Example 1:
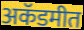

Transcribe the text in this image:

अकॅडमीत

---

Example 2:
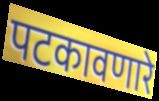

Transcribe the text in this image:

पटकावणारे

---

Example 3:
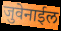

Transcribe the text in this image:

जुवेनाईल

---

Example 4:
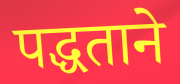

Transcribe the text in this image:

पद्धताने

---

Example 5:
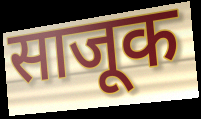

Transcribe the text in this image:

साजूक